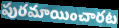
పురమాయించారట